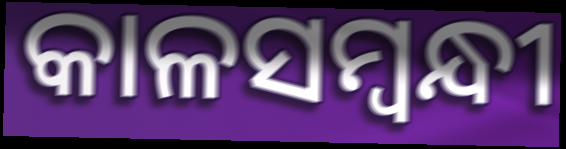
କାଳସମ୍ଵନ୍ଧୀ